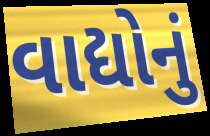
વાદ્યોનું